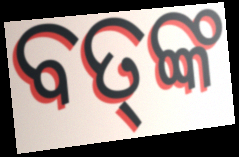
ବତ୍‍ଙ୍କ